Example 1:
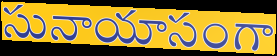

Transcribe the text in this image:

సునాయాసంగా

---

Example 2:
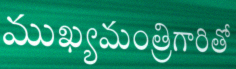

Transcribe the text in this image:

ముఖ్యమంత్రిగారితో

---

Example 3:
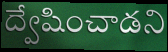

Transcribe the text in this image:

ద్వేషించాడని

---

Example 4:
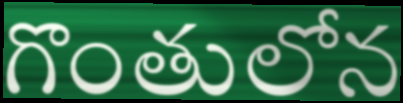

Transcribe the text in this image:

గొంతులోన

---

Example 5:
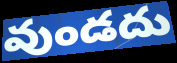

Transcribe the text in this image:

వుండదు